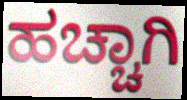
ಹಚ್ಚಾಗಿ